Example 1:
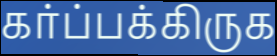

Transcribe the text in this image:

கர்ப்பக்கிருக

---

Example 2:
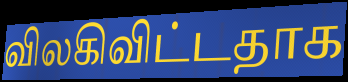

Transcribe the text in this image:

விலகிவிட்டதாக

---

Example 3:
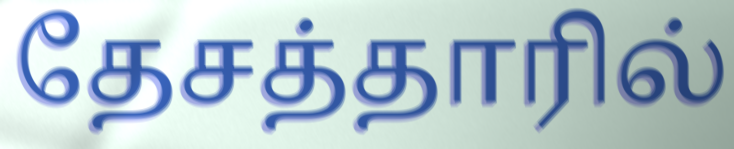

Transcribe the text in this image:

தேசத்தாரில்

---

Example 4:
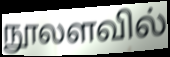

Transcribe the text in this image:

நூலளவில்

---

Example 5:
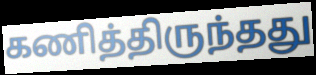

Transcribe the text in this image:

கணித்திருந்தது